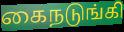
கைநடுங்கி